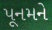
પૂનમને